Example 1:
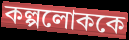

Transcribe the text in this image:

কল্পলোককে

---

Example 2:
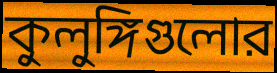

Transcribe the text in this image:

কুলুঙ্গিগুলোর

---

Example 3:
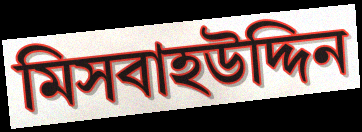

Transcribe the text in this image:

মিসবাহউদ্দিন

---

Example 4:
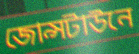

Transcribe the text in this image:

জোন্সটাউনে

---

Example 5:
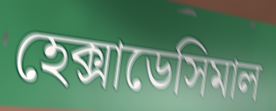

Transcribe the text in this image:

হেক্সাডেসিমাল